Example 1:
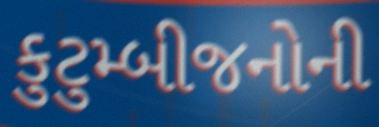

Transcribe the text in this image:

કુટુમ્બીજનોની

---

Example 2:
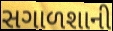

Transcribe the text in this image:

સગાળશાની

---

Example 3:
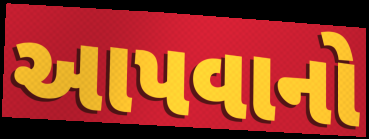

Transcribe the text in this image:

આપવાનો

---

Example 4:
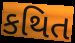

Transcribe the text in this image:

કથિત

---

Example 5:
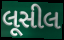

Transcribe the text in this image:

લૂસીલ